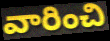
వారించి